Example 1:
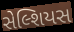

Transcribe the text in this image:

સેલ્શિયસ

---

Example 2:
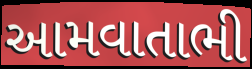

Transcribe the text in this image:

આમવાતાભી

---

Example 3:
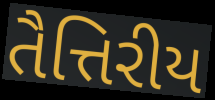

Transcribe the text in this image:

તૈત્તિરીય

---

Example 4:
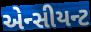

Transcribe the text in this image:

એન્સીયન્ટ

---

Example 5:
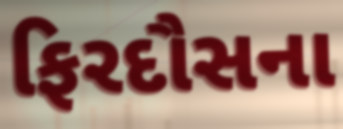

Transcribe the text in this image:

ફિરદૌસના